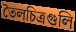
তৈলচিত্রগুলি